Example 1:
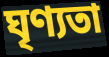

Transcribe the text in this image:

ঘৃণ্যতা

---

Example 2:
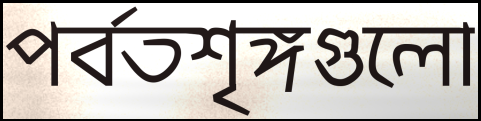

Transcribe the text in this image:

পর্বতশৃঙ্গগুলো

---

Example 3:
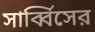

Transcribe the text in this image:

সার্ব্বিসের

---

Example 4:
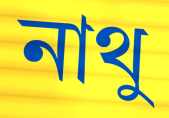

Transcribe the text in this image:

নাথু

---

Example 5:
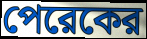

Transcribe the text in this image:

পেরেকের